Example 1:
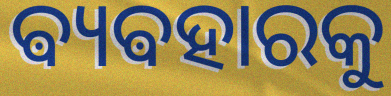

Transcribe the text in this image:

ଵ୍ୟଵହାରକୁ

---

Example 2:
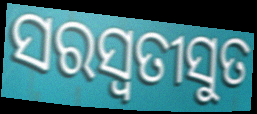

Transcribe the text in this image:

ସରସ୍ୱତୀସୁତ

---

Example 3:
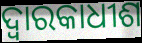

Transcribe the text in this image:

ଦ୍ୱାରକାଧୀଶ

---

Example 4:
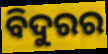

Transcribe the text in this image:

ବିଦୁରର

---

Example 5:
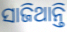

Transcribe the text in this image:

ସାଜିଥାନ୍ତି